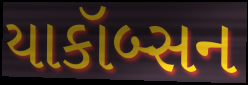
યાકૉબ્સન